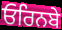
ਓਰਿਨਬੇ